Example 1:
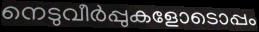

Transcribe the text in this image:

നെടുവീർപ്പുകളോടൊപ്പം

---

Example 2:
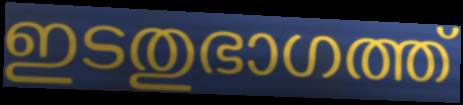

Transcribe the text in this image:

ഇടതുഭാഗത്ത്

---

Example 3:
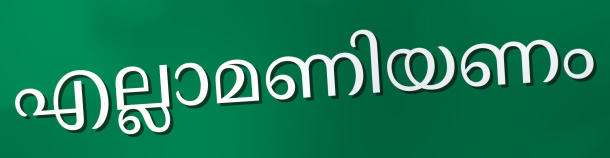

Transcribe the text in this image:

എല്ലാമണിയണം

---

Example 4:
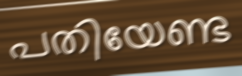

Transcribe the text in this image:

പതിയേണ്ട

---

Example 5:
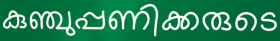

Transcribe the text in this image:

കുഞ്ചുപ്പണിക്കരുടെ